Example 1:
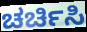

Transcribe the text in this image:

ಚರ್ಚಿಸಿ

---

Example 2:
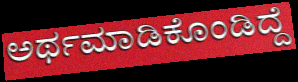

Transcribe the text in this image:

ಅರ್ಥಮಾಡಿಕೊಂಡಿದ್ದೆ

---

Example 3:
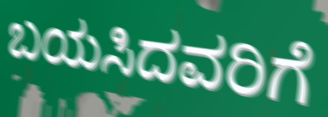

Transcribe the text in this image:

ಬಯಸಿದವರಿಗೆ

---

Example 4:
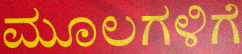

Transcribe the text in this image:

ಮೂಲಗಳಿಗೆ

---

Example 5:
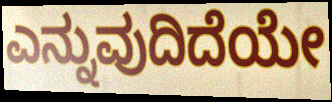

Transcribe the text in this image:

ಎನ್ನುವುದಿದೆಯೇ